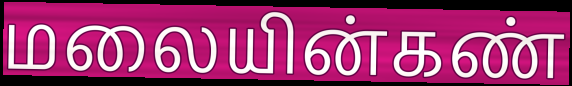
மலையின்கண்